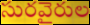
సురవైరుల